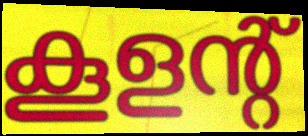
കൂളന്റ്